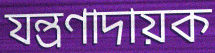
যন্ত্ৰণাদায়ক